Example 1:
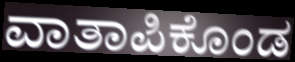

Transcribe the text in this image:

ವಾತಾಪಿಕೊಂಡ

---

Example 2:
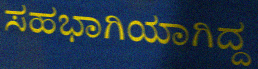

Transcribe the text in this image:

ಸಹಭಾಗಿಯಾಗಿದ್ದ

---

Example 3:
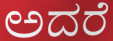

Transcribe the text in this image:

ಅದರೆ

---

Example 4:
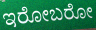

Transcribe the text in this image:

ಇರೋಬರೋ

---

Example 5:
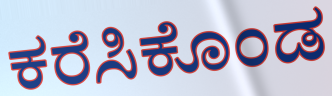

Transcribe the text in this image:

ಕರೆಸಿಕೊಂಡ